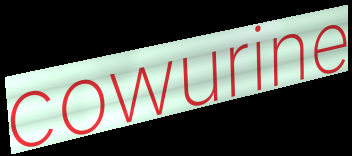
cowurine